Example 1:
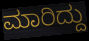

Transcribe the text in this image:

ಮಾರಿದ್ದು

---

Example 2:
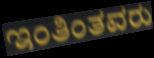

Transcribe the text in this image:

ಇಂತಿಂತವರು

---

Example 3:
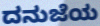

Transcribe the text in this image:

ದನುಜೆಯ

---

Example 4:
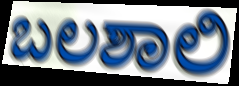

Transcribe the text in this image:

ಬಲಶಾಲಿ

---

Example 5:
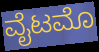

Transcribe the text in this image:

ವೈಟಮೊ